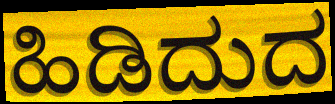
ಹಿಡಿದುದ